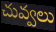
చువ్వలు